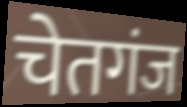
चेतगंज